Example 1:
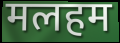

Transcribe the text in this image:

मलहम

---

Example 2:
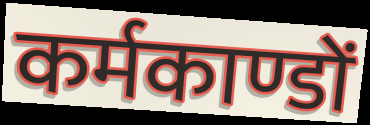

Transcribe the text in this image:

कर्मकाण्डों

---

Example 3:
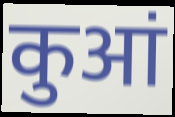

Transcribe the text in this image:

कुआं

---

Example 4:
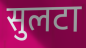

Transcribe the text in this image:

सुलटा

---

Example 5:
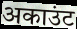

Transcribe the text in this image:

अकाउंट